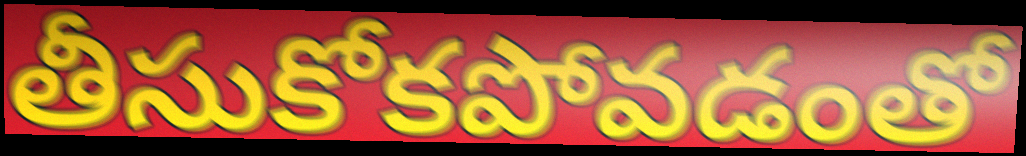
తీసుకోకపోవడంతో